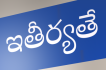
ఇతీర్యతే